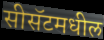
सीसॅटमधील